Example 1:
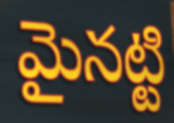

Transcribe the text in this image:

మైనట్టి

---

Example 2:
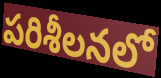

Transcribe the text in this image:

పరిశీలనలో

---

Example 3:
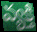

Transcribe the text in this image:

వ్యక్తి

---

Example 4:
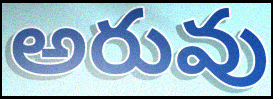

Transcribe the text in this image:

అరువు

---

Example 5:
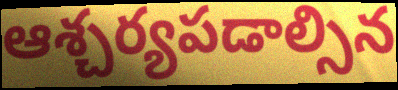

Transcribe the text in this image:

ఆశ్చర్యపడాల్సిన